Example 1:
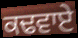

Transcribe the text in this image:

ਕਢਵਾਏ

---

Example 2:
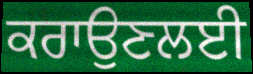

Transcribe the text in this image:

ਕਰਾਉਣਲਈ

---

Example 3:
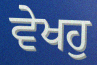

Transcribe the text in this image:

ਵੇਖਹੁ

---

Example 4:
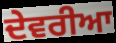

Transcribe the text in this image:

ਦੇਵਰੀਆ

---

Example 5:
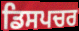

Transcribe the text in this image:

ਡਿਸਪਚਰ